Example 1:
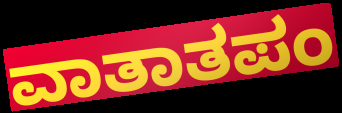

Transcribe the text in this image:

ವಾತಾತಪಂ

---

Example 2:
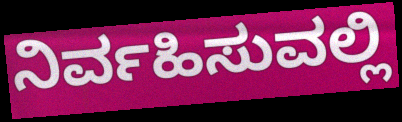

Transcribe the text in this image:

ನಿರ್ವಹಿಸುವಲ್ಲಿ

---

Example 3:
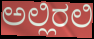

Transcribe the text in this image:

ಅಲ್ಲಿರಲಿ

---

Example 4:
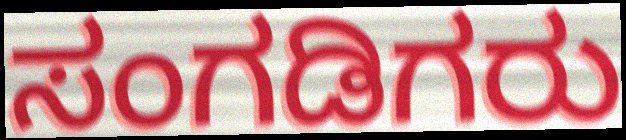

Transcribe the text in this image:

ಸಂಗಡಿಗರು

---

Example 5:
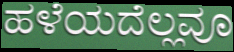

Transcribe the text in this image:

ಹಳೆಯದೆಲ್ಲವೂ